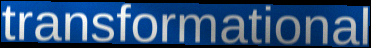
transformational